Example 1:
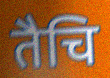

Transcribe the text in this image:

तैचि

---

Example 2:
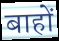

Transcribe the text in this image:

बाहों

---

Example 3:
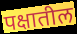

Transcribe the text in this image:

पक्षातील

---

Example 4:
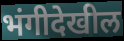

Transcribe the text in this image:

भंगीदेखील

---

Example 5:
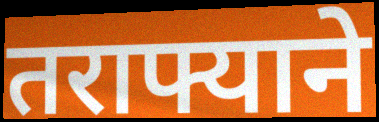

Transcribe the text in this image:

तराफ्याने